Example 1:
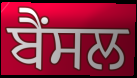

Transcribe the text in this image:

ਬੈਂਸਲ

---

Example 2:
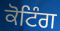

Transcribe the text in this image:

ਕੋਟਿੰਗ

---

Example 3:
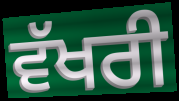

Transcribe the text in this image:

ਵੱਖਰੀ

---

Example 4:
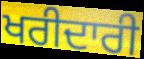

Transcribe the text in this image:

ਖਰੀਦਾਰੀ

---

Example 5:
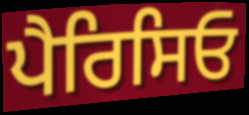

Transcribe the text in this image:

ਪੈਰਿਸਿਓ